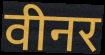
वीनर